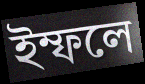
ইম্ফলে